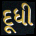
દૂધી